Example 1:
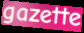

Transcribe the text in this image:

gazette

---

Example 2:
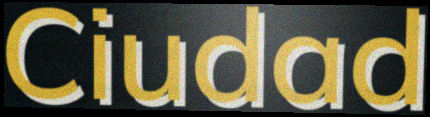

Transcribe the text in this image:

Ciudad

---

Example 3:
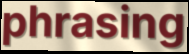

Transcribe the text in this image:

phrasing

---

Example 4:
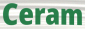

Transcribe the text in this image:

Ceram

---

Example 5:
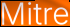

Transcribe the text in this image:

Mitre